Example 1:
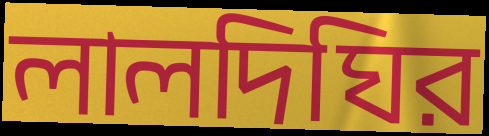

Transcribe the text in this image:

লালদিঘির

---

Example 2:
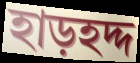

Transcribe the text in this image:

হাড়হদ্দ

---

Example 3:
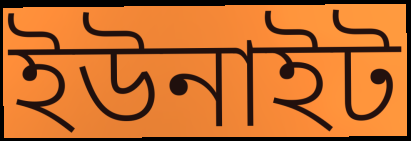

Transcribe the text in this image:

ইউনাইট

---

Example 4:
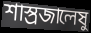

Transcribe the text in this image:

শাস্ত্রজালেষু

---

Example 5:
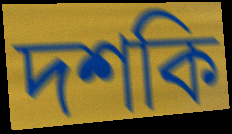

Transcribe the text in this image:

দশকি